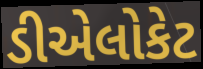
ડીએલોકેટ